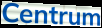
Centrum